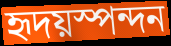
হৃদয়স্পন্দন